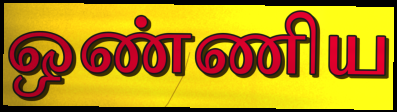
ஒண்ணிய